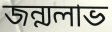
জন্মলাভ